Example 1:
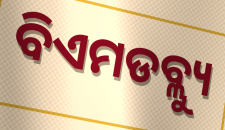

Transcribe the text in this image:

ବିଏମଡବ୍ଲ୍ୟୁ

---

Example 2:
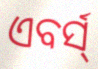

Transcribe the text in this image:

ଏବର୍ସ୍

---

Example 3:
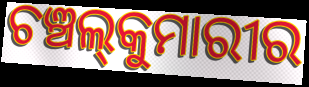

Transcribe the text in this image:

ଚଞ୍ଚଲ୍‍କୁମାରୀର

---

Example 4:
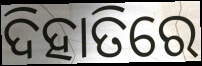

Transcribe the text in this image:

ଦିହାତିରେ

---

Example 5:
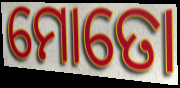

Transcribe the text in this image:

ମୋତୋ